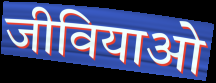
जीवियाओ